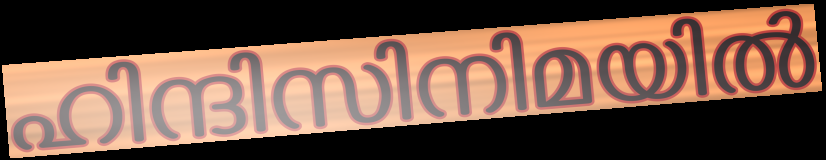
ഹിന്ദിസിനിമയിൽ